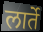
लार्ते